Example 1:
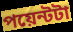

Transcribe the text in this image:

পয়েন্টটা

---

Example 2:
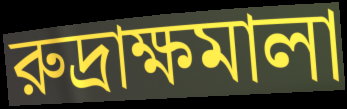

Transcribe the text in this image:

রুদ্রাক্ষমালা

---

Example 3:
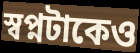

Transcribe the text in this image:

স্বপ্নটাকেও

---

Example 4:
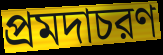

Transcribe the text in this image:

প্রমদাচরণ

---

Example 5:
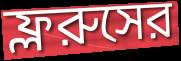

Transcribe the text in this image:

ফ্লরুসের